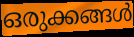
ഒരുക്കങ്ങൾ